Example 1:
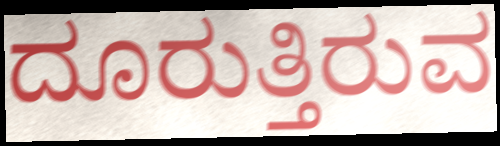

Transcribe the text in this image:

ದೂರುತ್ತಿರುವ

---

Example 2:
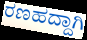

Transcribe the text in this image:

ರಣಹದ್ದಾಗಿ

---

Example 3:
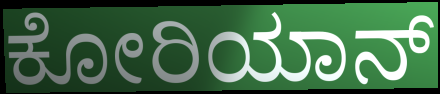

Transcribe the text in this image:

ಕೋರಿಯಾನ್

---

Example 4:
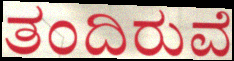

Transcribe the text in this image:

ತಂದಿರುವೆ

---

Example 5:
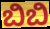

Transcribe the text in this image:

ಬಿಬಿ